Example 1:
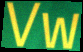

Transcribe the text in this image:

Vw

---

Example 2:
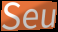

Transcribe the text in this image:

Seu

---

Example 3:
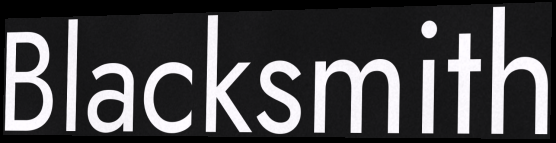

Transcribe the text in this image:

Blacksmith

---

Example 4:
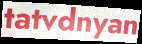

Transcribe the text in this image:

tatvdnyan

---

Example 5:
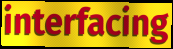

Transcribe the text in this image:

interfacing